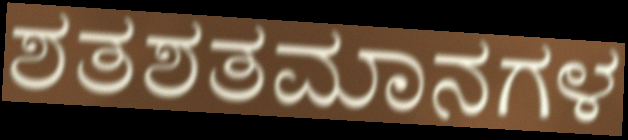
ಶತಶತಮಾನಗಳ